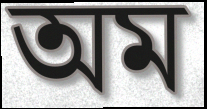
অম